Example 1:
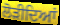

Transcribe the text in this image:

ਲੋੜੀਦਿਆਂ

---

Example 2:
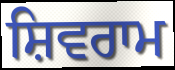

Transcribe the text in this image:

ਸ਼ਿਵਰਾਮ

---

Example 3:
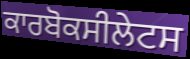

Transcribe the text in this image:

ਕਾਰਬੋਕਸੀਲੇਟਸ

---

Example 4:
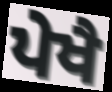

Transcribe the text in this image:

ਪੇਖੈ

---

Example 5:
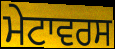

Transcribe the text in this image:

ਮੇਟਾਵਰਸ